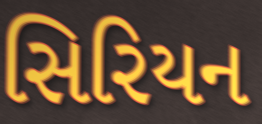
સિરિયન